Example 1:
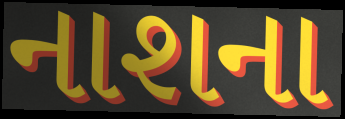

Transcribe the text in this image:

નાશના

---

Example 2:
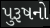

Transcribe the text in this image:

પુરૂષનો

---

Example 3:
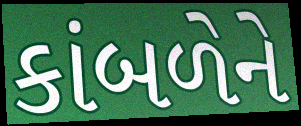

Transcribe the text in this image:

કાંબળેને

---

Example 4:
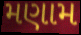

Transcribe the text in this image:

મણામ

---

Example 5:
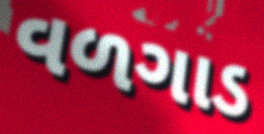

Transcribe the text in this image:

વળગાડ